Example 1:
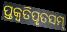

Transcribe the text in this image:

ପ୍ତକ୍ଵତିପୃତସମ୍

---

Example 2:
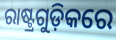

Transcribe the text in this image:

ରାଷ୍ଟ୍ରଗୁଡ଼ିକରେ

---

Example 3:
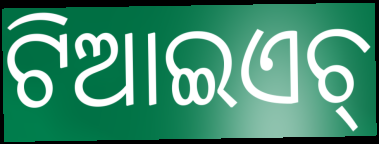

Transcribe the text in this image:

ଟିଆଇଏଚ୍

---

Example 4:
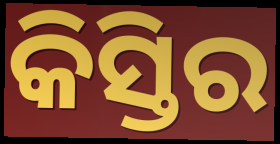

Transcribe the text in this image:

କିସ୍ତିର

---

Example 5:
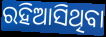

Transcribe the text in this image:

ରହିଆସିଥିବା